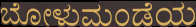
ಬೋಳುಮಂಡೆಯ